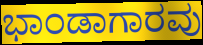
ಭಾಂಡಾಗಾರವು